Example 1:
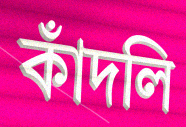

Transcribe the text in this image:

কাঁদলি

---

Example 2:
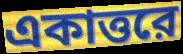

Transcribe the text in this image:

একাত্তরে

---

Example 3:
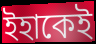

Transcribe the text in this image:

ইহাকেই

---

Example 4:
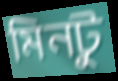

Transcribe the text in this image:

মিনটু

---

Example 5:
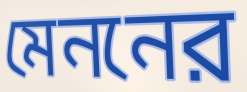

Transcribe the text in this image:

মেননের